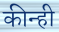
कीन्ही